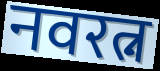
नवरत्न